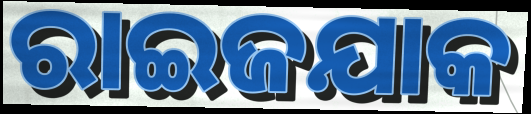
ରାଇଜଯାକ